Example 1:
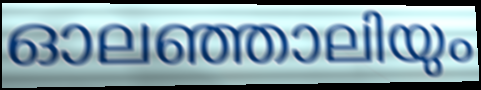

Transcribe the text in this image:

ഓലഞ്ഞാലിയും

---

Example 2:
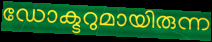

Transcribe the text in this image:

ഡോക്ടറുമായിരുന്ന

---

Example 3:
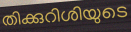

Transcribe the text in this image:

തിക്കുറിശിയുടെ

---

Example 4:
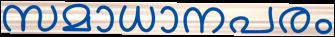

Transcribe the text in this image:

സമാധാനപരം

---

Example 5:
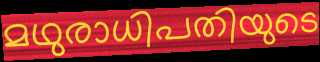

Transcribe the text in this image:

മഥുരാധിപതിയുടെ